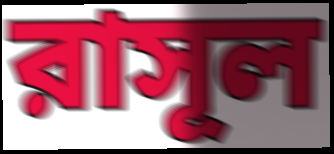
রাসূল